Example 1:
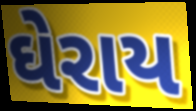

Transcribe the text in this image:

ઘેરાય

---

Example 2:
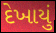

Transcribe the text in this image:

દેખાયું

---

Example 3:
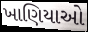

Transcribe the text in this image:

ખાણિયાઓ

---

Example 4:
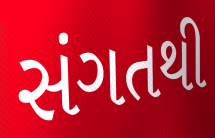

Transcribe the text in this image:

સંગતથી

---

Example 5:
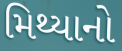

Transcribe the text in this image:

મિથ્યાનો